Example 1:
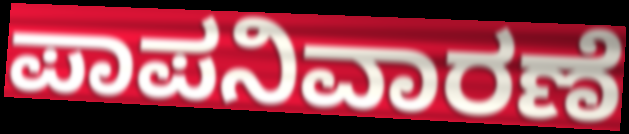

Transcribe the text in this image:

ಪಾಪನಿವಾರಣೆ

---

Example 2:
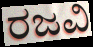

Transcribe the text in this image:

ರಜವಿ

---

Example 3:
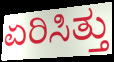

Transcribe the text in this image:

ಏರಿಸಿತ್ತು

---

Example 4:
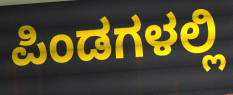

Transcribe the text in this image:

ಪಿಂಡಗಳಲ್ಲಿ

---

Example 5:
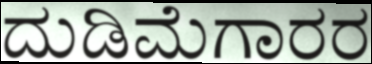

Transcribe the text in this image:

ದುಡಿಮೆಗಾರರ